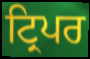
ਟ੍ਰਿਪਰ